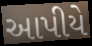
આપીયે